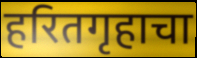
हरितगृहाचा